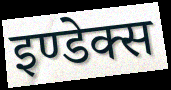
इण्डेक्स